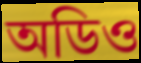
অডিও